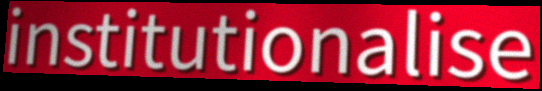
institutionalise